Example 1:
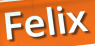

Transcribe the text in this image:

Felix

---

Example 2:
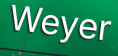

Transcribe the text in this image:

Weyer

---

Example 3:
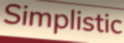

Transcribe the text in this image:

Simplistic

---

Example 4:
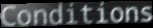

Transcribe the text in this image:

Conditions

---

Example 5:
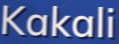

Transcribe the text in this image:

Kakali